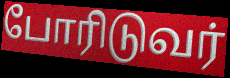
போரிடுவர்